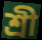
শ্ৰী